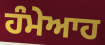
ਹੰਮੇਆਹ